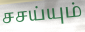
சசய்யும்